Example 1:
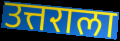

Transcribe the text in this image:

उत्तराला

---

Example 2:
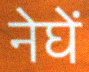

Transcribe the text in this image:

नेघें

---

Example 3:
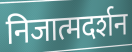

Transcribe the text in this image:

निजात्मदर्शन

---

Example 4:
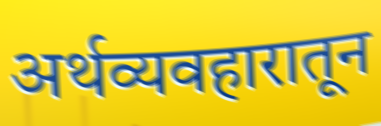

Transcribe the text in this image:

अर्थव्यवहारातून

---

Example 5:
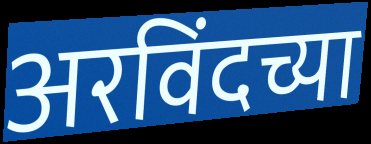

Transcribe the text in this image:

अरविंदच्या